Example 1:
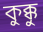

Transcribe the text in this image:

কুক্কু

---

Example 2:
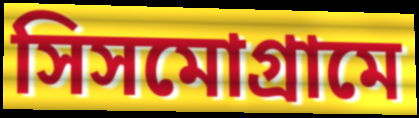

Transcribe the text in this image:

সিসমোগ্রামে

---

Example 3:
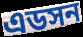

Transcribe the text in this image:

এডসন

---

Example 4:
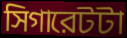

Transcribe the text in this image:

সিগারেটটা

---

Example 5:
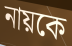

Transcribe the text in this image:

নায়কে